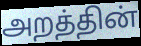
அறத்தின்